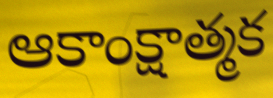
ఆకాంక్షాత్మక